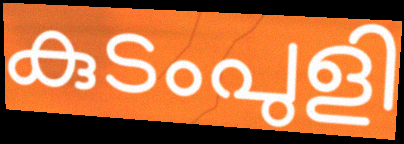
കുടംപുളി